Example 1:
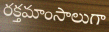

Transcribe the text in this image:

రక్తమాంసాలుగా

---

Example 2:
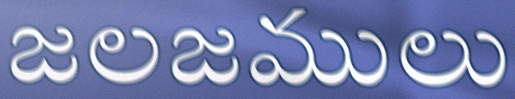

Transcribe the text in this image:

జలజములు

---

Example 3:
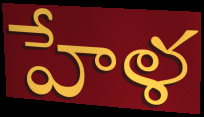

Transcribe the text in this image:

హేళ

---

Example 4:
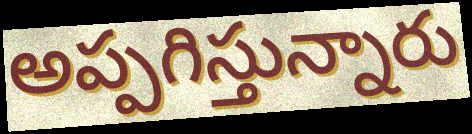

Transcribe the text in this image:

అప్పగిస్తున్నారు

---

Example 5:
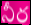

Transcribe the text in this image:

నీర